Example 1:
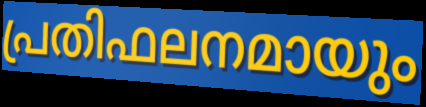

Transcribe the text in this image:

പ്രതിഫലനമായും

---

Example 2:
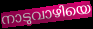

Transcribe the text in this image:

നാടുവാഴിയെ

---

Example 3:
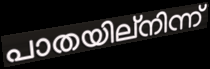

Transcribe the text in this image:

പാതയില്നിന്ന്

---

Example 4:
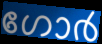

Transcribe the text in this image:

ഗോർ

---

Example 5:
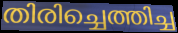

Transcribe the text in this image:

തിരിച്ചെത്തിച്ച